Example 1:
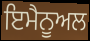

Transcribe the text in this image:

ਇਮੈਨੂਅਲ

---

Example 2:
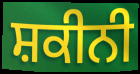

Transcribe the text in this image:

ਸ਼ਕੀਨੀ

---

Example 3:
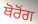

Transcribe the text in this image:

ਥੋਰੋਂਗ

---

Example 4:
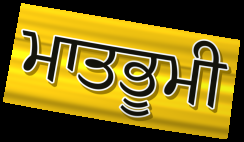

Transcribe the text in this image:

ਮਾਤਭੂਮੀ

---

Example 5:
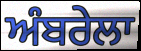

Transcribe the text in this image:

ਅੰਬਰੇਲਾ